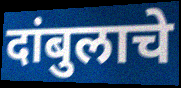
दांबुलाचे